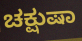
ಚಕ್ಷುಷಾ